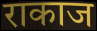
राकाज